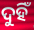
ଦୁହିଁ